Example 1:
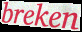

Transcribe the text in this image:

breken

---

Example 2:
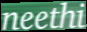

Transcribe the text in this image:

neethi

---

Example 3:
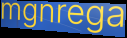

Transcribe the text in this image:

mgnrega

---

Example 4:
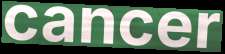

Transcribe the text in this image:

cancer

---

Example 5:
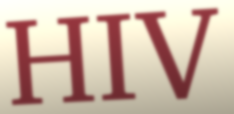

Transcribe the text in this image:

HIV